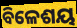
ବିଳେଶୟ